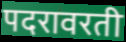
पदरावरती